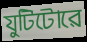
যুটিটোৱে